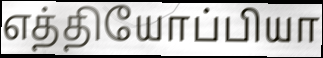
எத்தியோப்பியா